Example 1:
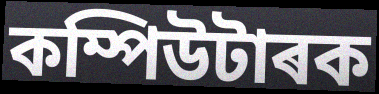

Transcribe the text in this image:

কম্পিউটাৰক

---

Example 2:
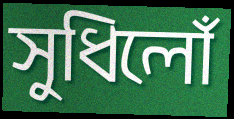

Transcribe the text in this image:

সুধিলোঁ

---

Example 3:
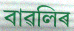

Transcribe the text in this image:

বাৱলিৰ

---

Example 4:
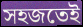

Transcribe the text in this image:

সহজতেই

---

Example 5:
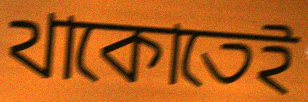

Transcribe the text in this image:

থাকোতেই